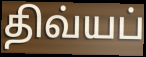
திவ்யப்